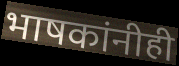
भाषकांनीही